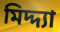
মিদ্দ্যা